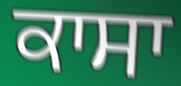
ਕਾਸਾ